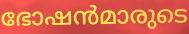
ഭോഷൻമാരുടെ